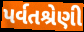
પર્વતશ્રેણી